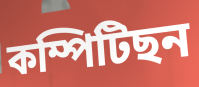
কম্পিটিছন